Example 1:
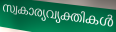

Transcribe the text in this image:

സ്വകാര്യവ്യക്തികൾ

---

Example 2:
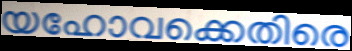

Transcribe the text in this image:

യഹോവക്കെതിരെ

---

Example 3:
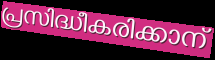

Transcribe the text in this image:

പ്രസിദ്ധീകരിക്കാന്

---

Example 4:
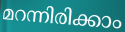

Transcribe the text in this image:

മറന്നിരിക്കാം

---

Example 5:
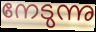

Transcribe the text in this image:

നേടുന്നു